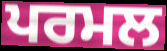
ਪਰਮਲ